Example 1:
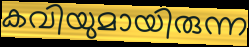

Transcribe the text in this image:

കവിയുമായിരുന്ന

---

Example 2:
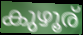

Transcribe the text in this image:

കുഴൂര്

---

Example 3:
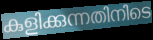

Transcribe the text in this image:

കുളിക്കുന്നതിനിടെ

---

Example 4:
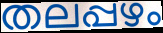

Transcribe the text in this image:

തലപ്പഴം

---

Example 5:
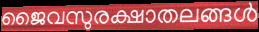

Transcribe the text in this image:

ജൈവസുരക്ഷാതലങ്ങൾ